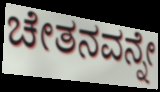
ಚೇತನವನ್ನೇ